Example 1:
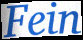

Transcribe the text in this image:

Fein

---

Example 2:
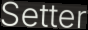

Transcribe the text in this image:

Setter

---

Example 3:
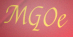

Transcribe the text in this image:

MGOe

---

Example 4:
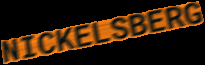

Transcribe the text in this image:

NICKELSBERG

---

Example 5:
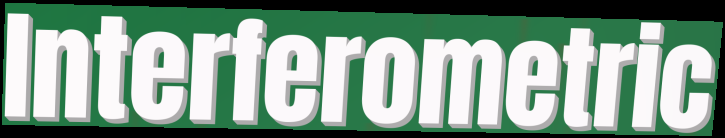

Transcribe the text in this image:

Interferometric